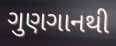
ગુણગાનથી